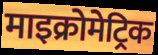
माइक्रोमेट्रिक